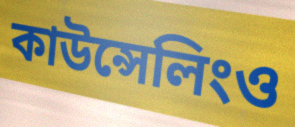
কাউন্সেলিংও